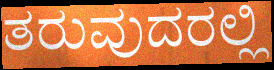
ತರುವುದರಲ್ಲಿ